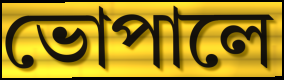
ভোপালে